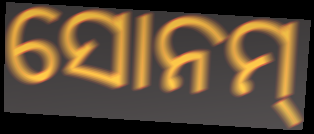
ସୋନମ୍